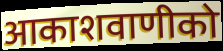
आकाशवाणीको